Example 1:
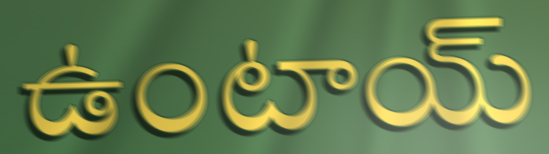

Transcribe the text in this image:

ఉంటాయ్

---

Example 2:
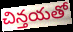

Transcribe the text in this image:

చిన్తయతో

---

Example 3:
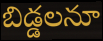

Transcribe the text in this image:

బిడ్డలనూ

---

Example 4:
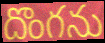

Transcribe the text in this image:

దొంగను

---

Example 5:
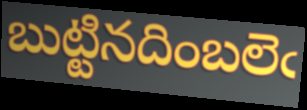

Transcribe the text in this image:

బుట్టినదింబలెఁ